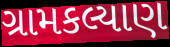
ગ્રામકલ્યાણ